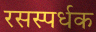
रसस्पर्धक